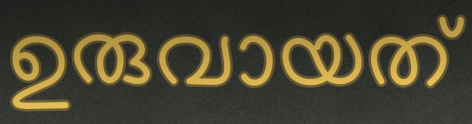
ഉരുവായത്